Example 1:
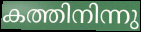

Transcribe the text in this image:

കത്തിനിന്നു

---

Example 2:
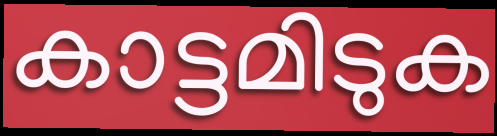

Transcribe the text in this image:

കാട്ടമിടുക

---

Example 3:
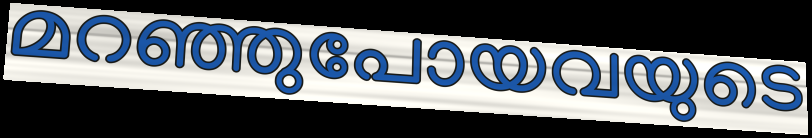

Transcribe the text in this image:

മറഞ്ഞുപോയവയുടെ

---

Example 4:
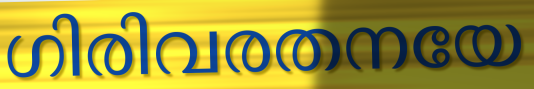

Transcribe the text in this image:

ഗിരിവരതനയേ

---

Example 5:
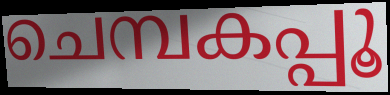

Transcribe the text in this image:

ചെമ്പകപ്പൂ